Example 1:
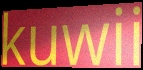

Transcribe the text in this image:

kuwii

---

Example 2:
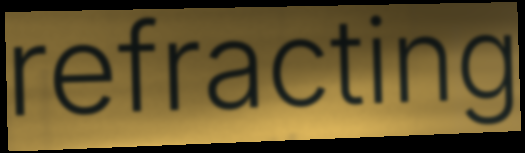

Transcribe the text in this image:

refracting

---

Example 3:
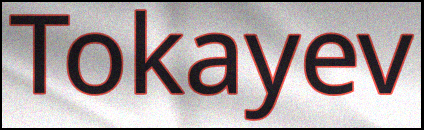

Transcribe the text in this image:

Tokayev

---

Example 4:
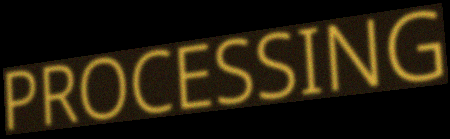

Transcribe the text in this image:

PROCESSING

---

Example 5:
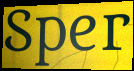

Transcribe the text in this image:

Sper